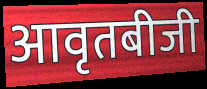
आवृतबीजी